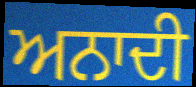
ਅਨਾਦੀ